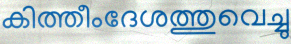
കിത്തീംദേശത്തുവെച്ചു